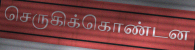
செருகிக்கொண்டன